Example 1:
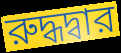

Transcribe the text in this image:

রুদ্ধদ্বার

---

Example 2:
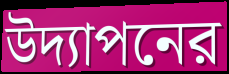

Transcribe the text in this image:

উদ্যাপনের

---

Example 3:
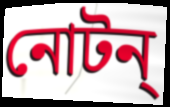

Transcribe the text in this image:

নোটন্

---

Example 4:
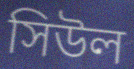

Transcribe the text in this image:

সিউল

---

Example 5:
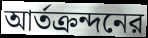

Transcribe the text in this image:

আর্তক্রন্দনের